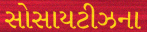
સોસાયટીઝના